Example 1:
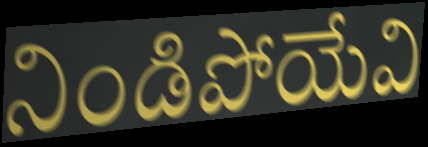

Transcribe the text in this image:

నిండిపోయేవి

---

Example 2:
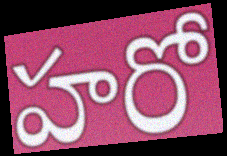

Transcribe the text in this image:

హరో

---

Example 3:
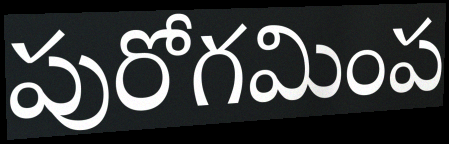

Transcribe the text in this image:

పురోగమింప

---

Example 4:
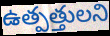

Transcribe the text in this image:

ఉత్పత్తులని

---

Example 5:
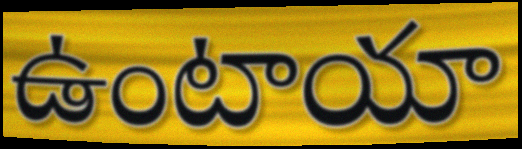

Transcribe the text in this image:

ఉంటాయా